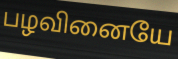
பழவினையே